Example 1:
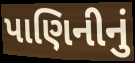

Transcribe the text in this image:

પાણિનીનું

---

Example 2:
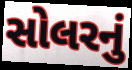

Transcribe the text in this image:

સોલરનું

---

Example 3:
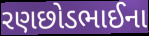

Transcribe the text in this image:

રણછોડભાઈના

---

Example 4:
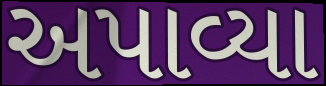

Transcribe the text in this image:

અપાવ્યા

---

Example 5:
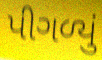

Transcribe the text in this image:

પીગળ્યું